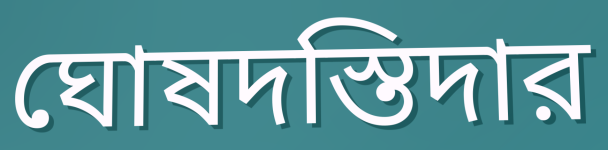
ঘোষদস্তিদার